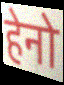
हेनो